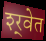
श्र्वेत